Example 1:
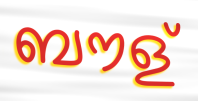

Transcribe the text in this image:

ബൗള്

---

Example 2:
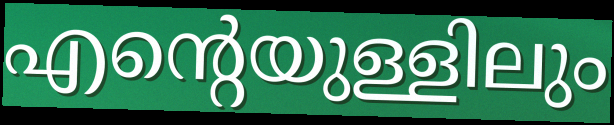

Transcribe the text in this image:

എന്റെയുള്ളിലും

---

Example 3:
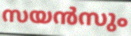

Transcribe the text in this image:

സയൻസും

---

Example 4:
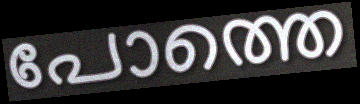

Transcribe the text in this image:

പോത്തെ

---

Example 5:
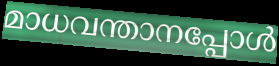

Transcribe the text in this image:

മാധവന്താനപ്പോൾ